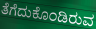
ತೆಗೆದುಕೊಂಡಿರುವ